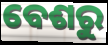
ବେଶରୁ